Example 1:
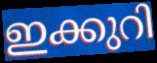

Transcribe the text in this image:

ഇക്കുറി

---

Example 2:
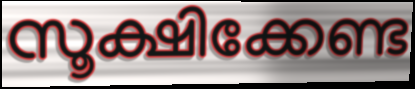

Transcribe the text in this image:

സൂക്ഷിക്കേണ്ട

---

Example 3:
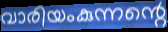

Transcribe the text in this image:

വാരിയംകുന്നന്റെ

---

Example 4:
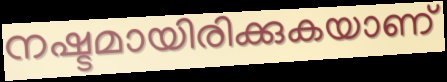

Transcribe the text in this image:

നഷ്ടമായിരിക്കുകയാണ്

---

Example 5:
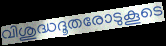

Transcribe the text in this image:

വിശുദ്ധദൂതരോടുകൂടെ